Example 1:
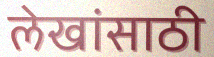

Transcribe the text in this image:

लेखांसाठी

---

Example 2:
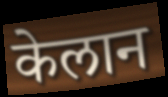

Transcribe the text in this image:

केलान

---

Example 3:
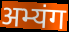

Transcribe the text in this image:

अभ्यंग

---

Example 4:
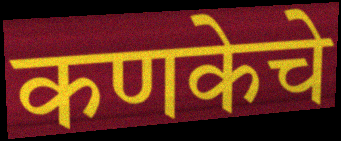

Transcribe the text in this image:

कणकेचे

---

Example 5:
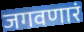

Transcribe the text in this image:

जगवणारं